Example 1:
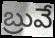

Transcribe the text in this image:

బ్రువే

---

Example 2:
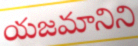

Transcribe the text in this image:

యజమానిని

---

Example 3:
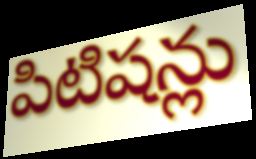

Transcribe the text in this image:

పిటిషన్లు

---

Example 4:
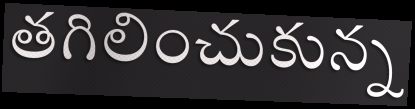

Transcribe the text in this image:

తగిలించుకున్న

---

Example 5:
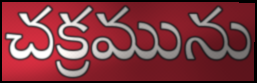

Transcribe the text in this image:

చక్రమును